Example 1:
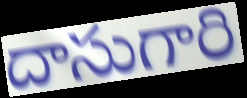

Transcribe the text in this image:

దాసుగారి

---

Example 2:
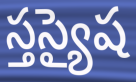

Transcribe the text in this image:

స్తస్యైష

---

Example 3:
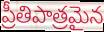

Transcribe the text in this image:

ప్రీతిపాత్రమైన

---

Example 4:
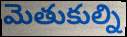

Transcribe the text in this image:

మెతుకుల్ని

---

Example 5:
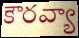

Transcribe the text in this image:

కౌరవ్యా